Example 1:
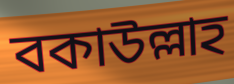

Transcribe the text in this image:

বকাউল্লাহ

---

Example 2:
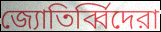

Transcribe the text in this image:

জ্যোতির্ব্বিদেরা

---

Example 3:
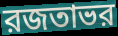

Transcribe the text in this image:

রজতাভর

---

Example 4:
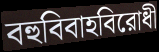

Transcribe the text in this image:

বহুবিবাহবিরোধী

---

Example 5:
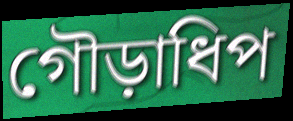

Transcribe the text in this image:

গৌড়াধিপ